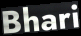
Bhari